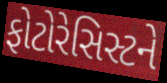
ફોટોરેસિસ્ટને